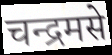
चन्द्रमसे